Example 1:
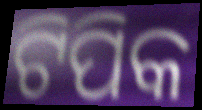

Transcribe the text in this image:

ଟିପିକ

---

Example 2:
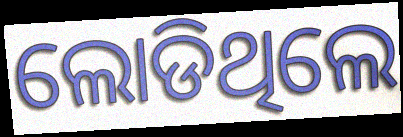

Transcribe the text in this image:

ଲୋଡିଥିଲେ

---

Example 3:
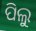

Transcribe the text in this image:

ପିଲୁ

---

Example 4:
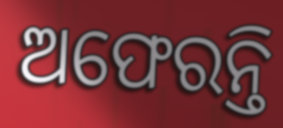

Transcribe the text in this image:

ଅଫେରନ୍ତି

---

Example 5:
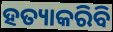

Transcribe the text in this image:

ହତ୍ୟାକରିବି